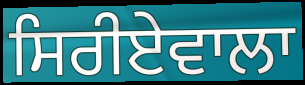
ਸਿਰੀਏਵਾਲਾ